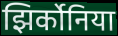
झिर्कोनिया